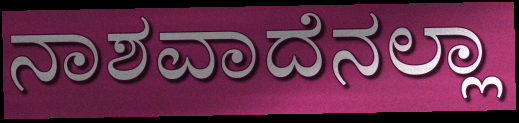
ನಾಶವಾದೆನಲ್ಲಾ